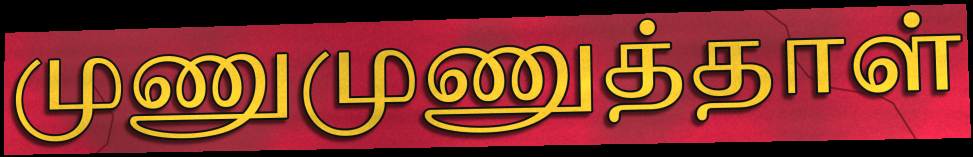
முணுமுணுத்தாள்